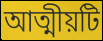
আত্মীয়টি